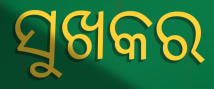
ସୁଖକର